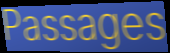
Passages